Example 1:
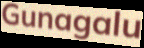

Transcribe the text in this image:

Gunagalu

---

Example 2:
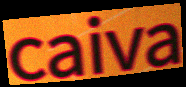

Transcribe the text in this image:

caiva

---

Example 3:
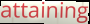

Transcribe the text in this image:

attaining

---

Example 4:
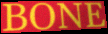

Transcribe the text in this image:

BONE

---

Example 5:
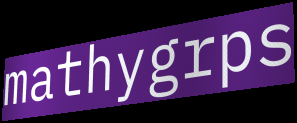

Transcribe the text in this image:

mathygrps